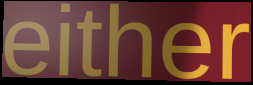
either